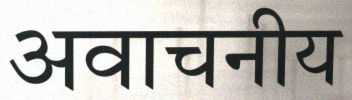
अवाचनीय